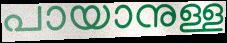
പായാനുള്ള